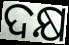
ଦକ୍ଷ